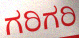
ಗರಿಗರಿ